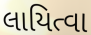
લાયિત્વા